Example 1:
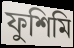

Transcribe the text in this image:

ফুশিমি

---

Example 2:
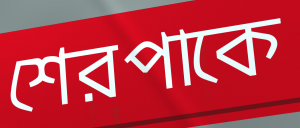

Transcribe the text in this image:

শেরপাকে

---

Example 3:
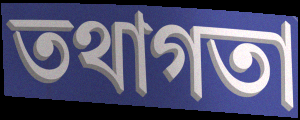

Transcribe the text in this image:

তথাগতা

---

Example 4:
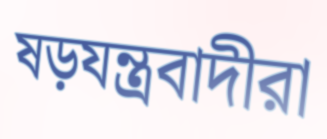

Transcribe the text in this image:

ষড়যন্ত্রবাদীরা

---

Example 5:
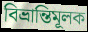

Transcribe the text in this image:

বিভ্রান্তিমূলক